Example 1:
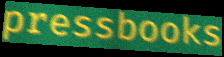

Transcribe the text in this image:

pressbooks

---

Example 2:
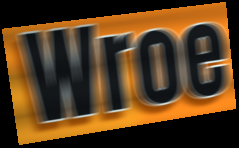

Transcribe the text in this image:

Wroe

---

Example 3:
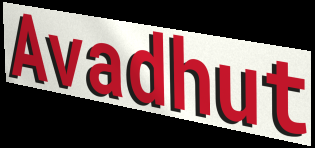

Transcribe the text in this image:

Avadhut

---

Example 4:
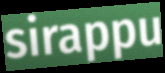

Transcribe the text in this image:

sirappu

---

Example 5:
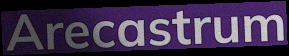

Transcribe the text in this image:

Arecastrum